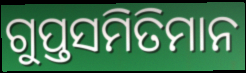
ଗୁପ୍ତସମିତିମାନ